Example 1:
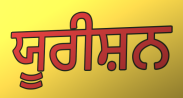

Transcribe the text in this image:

ਯੂਰੀਸ਼ਨ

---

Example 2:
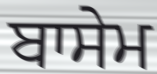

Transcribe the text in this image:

ਬਾਸੇਮ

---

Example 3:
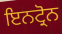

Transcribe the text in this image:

ਇਨਟ੍ਰੋਨ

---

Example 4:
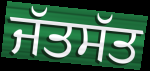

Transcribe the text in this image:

ਜੱਤਸੱਤ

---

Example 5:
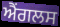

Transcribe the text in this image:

ਐਂਗਲਸ